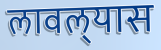
लावल्यास